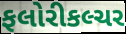
ફલોરીકલ્ચર